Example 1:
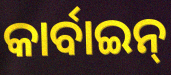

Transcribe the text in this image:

କାର୍ବାଇନ୍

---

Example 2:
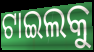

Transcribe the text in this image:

ଟାଇଲକୁ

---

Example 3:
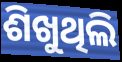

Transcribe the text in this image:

ଶିଖୁଥିଲି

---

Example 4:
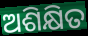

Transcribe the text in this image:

ଅଶିକ୍ଷିତ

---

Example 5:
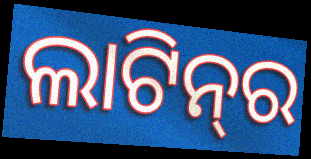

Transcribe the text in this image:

ଲାଟିନ୍‌ର